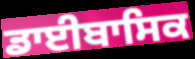
ਡਾਈਬਾਸਿਕ